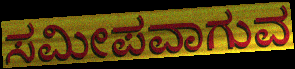
ಸಮೀಪವಾಗುವ